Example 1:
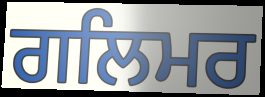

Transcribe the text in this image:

ਗਲਿਮਰ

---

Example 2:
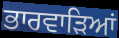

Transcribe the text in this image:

ਭਾਰਵਾੜਿਆਂ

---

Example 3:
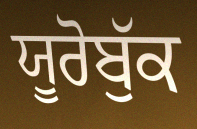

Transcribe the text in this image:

ਯੂਰੋਬੁੱਕ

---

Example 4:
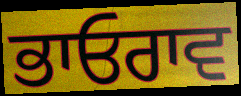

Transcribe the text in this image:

ਭਾਓਰਾਵ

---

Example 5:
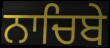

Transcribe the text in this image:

ਨਾਚਿਬੇ